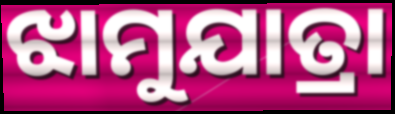
ଝାମୁଯାତ୍ରା